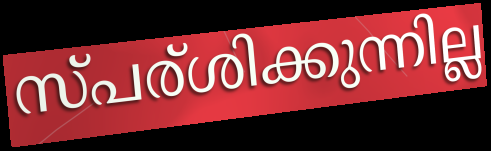
സ്പര്ശിക്കുന്നില്ല